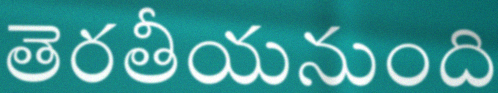
తెరతీయనుంది